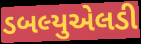
ડબલ્યુએલડી